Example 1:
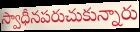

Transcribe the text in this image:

స్వాధీనపరుచుకున్నారు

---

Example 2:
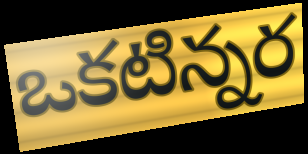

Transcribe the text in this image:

ఒకటిన్నర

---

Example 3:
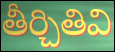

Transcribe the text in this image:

తీర్చితివి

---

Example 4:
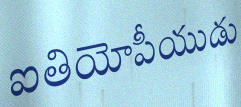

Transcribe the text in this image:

ఐతియోపీయుడు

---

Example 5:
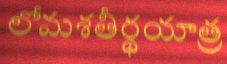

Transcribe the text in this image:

లోమశతీర్థయాత్ర